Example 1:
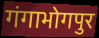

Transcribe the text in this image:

गंगाभोगपुर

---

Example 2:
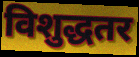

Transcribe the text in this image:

विशुद्धतर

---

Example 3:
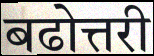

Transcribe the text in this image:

बढोत्तरी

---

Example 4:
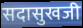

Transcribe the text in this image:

सदासुखजी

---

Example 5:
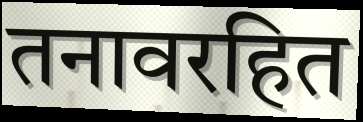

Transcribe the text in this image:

तनावरहित